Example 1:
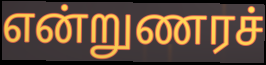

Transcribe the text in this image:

என்றுணரச்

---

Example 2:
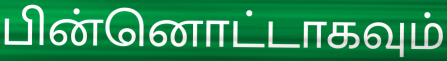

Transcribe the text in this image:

பின்னொட்டாகவும்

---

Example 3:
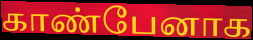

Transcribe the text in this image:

காண்பேனாக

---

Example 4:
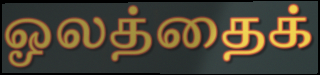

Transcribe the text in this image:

ஓலத்தைக்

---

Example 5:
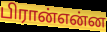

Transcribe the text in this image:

பிரான்என்ன